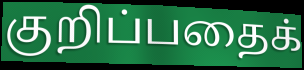
குறிப்பதைக்